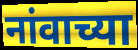
नांवाच्या